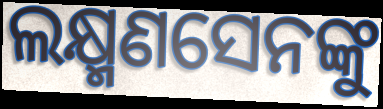
ଲକ୍ଷ୍ମଣସେନଙ୍କୁ